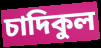
চাদিকুল